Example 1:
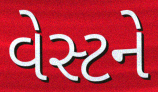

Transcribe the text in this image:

વેસ્ટને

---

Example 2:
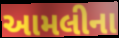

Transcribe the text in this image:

આમલીના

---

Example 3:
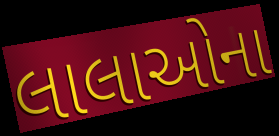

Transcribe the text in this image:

લાલાઓના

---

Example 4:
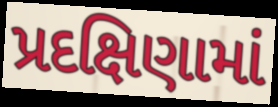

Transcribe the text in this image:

પ્રદક્ષિણામાં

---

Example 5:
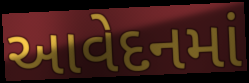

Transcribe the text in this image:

આવેદનમાં